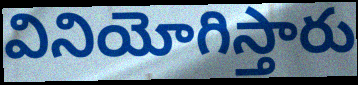
వినియోగిస్తారు